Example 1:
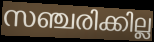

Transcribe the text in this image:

സഞ്ചരിക്കില്ല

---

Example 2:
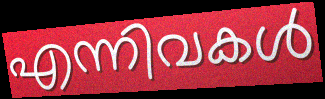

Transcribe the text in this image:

എന്നിവകൾ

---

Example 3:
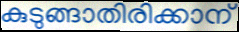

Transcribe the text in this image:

കുടുങ്ങാതിരിക്കാന്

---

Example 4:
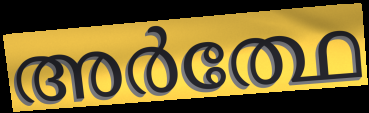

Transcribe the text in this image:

അർത്ഥേ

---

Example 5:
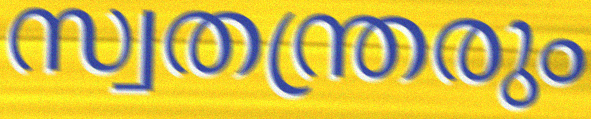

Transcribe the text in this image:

സ്വതന്ത്രരും